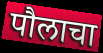
पौलाचा